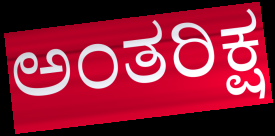
ಅಂತರಿಕ್ಷ